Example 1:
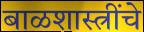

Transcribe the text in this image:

बाळशास्त्रींचे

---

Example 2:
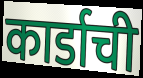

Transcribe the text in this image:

कार्डाची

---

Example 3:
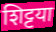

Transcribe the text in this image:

शिट्टया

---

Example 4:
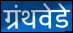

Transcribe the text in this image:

ग्रंथवेडे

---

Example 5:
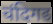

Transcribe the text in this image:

चंदिगड